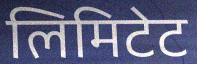
लिमिटेट